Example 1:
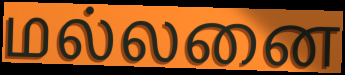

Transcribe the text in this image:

மல்லனை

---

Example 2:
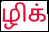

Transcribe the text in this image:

ழிக்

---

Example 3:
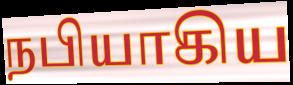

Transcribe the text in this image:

நபியாகிய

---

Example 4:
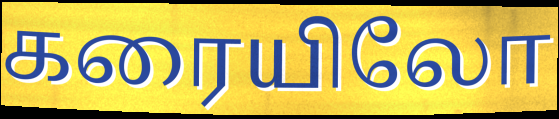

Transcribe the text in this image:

கரையிலோ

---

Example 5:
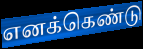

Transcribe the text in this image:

எனக்கெண்டு